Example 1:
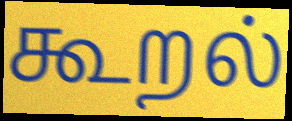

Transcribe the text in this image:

கூறல்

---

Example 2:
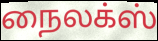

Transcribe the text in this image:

நைலக்ஸ்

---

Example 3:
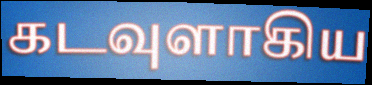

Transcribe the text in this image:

கடவுளாகிய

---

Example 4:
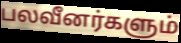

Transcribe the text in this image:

பலவீனர்களும்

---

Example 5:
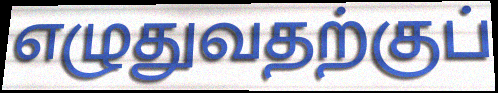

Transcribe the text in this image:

எழுதுவதற்குப்